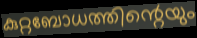
കുറ്റബോധത്തിന്റെയും